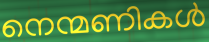
നെന്മണികൾ